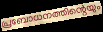
പ്രബോധനത്തിന്റെയും